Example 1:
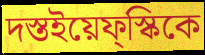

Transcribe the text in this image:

দস্তইয়েফ্স্কিকে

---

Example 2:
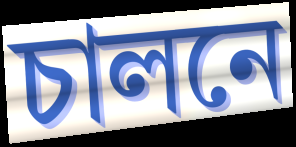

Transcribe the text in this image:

চালনে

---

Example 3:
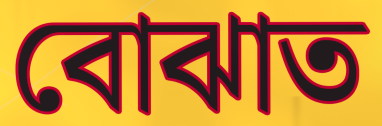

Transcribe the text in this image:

বোঝাত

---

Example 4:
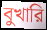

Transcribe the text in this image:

বুখারি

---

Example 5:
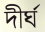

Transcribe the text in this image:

দীর্ঘ